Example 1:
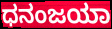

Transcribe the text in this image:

ಧನಂಜಯಾ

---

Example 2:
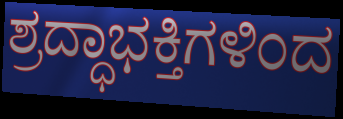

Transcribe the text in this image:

ಶ್ರದ್ಧಾಭಕ್ತಿಗಳಿಂದ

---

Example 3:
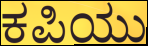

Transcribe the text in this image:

ಕಪಿಯು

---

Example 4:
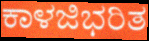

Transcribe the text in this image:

ಕಾಳಜಿಭರಿತ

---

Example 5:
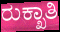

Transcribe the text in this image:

ರುಕ್ಖಾತಿ